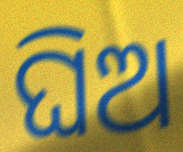
ଘିଅ